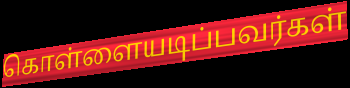
கொள்ளையடிப்பவர்கள்